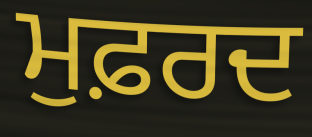
ਮੁਫ਼ਰਦ